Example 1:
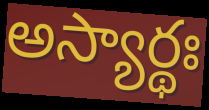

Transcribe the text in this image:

అస్యార్థః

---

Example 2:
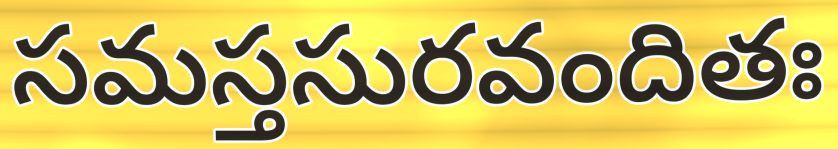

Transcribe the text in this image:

సమస్తసురవందితః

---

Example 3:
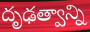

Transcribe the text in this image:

దృఢత్వాన్ని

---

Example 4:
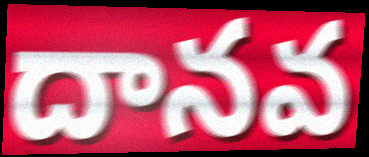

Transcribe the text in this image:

దానవ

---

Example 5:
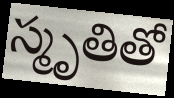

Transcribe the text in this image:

స్మృతితో